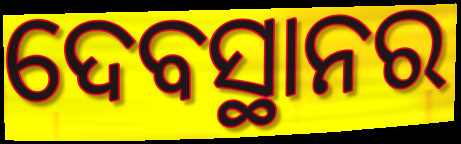
ଦେବସ୍ଥାନର